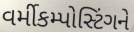
વર્મીકમ્પોસ્ટિંગને